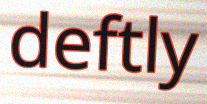
deftly